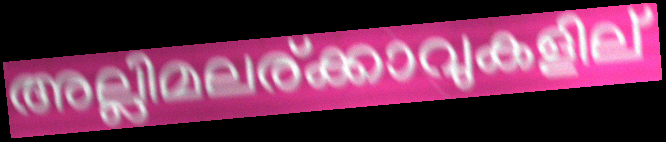
അല്ലിമലര്ക്കാവുകളില്